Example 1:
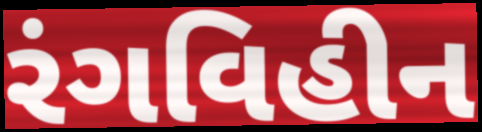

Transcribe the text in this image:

રંગવિહીન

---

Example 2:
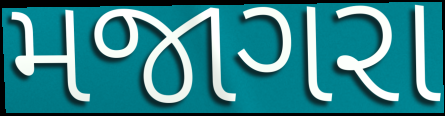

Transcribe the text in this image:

મજાગરા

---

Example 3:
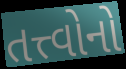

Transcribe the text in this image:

તત્ત્વોનો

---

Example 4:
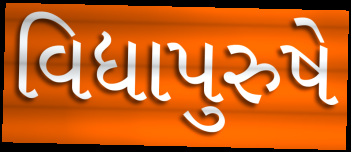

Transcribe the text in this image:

વિદ્યાપુરુષે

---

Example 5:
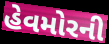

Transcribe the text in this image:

હેવમોરની